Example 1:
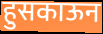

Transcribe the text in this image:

हुसकाऊन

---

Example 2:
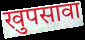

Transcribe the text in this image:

खुपसावा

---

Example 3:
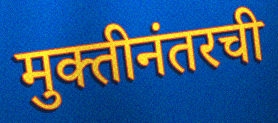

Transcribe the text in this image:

मुक्तीनंतरची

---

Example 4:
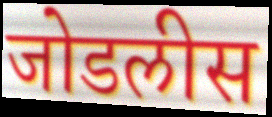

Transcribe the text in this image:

जोडलीस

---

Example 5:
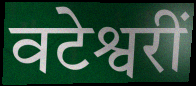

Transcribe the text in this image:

वटेश्वरीं